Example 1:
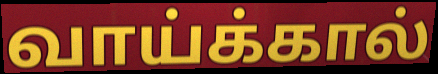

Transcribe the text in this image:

வாய்க்கால்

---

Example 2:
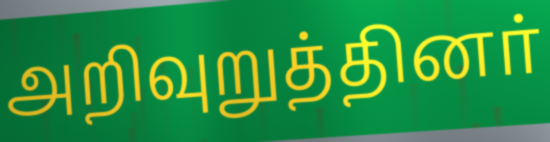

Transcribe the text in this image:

அறிவுறுத்தினர்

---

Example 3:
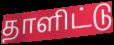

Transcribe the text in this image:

தாளிட்டு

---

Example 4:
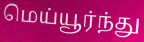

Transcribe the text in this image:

மெய்யூர்ந்து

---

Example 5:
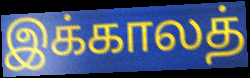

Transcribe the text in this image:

இக்காலத்